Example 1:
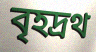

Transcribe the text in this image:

বৃহদ্রথ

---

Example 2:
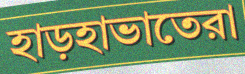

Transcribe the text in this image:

হাড়হাভাতেরা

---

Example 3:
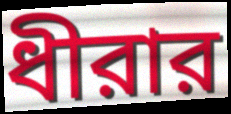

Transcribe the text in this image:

ধীরার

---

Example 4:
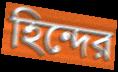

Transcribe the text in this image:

হিন্দের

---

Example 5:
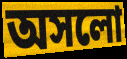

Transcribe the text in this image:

অসলো